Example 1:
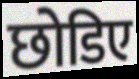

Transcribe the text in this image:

छोडिए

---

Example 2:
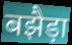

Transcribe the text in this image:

बझैड़ा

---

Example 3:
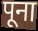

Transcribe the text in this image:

पूना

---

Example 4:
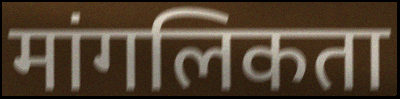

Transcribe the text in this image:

मांगलिकता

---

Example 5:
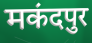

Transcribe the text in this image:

मकंदपुर